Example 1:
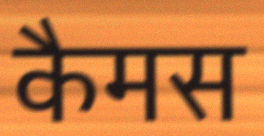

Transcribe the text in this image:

कैमस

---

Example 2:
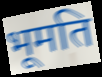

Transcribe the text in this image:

भूमति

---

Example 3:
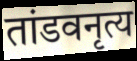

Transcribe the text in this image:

तांडवनृत्य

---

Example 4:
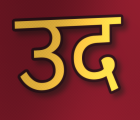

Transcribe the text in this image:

उद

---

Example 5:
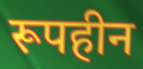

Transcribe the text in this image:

रूपहीन